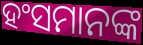
ହଂସମାନଙ୍କ